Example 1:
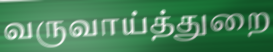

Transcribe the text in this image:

வருவாய்த்துறை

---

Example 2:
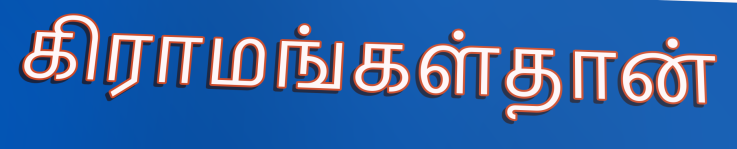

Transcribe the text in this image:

கிராமங்கள்தான்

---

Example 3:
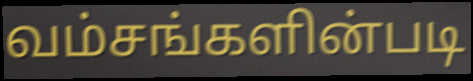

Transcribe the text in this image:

வம்சங்களின்படி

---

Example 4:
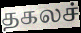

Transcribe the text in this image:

தகலச்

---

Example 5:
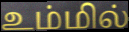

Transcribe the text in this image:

உம்மில்